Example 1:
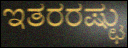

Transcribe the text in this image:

ಇತರರಷ್ಟು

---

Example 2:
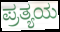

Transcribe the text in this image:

ಪ್ರತ್ಯಯ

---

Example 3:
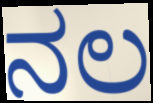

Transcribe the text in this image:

ನಲ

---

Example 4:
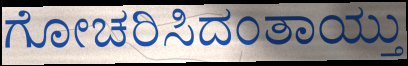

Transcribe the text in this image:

ಗೋಚರಿಸಿದಂತಾಯ್ತು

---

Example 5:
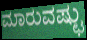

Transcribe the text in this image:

ಮಾರುವಷ್ಟು